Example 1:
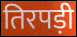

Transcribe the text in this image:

तिरपड़ी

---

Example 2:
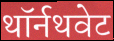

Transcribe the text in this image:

थॉर्नथवेट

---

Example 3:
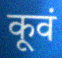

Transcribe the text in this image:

कूवं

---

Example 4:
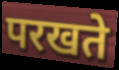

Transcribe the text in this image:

परखते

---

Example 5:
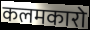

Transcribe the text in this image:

कलमकारो